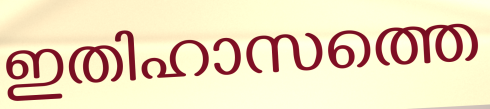
ഇതിഹാസത്തെ